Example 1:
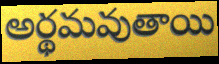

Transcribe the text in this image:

అర్థమవుతాయి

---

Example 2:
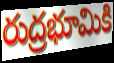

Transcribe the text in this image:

రుద్రభూమికి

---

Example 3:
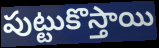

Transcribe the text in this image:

పుట్టుకొస్తాయి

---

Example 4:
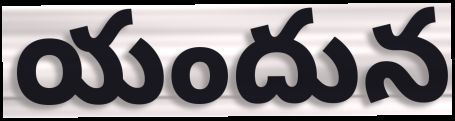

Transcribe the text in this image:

యందున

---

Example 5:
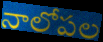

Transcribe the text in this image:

నాలోపల